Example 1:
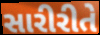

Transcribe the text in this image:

સારીરીતે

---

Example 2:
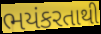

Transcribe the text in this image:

ભયંકરતાથી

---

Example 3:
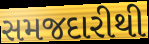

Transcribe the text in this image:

સમજદારીથી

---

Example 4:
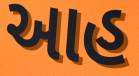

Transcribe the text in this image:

આહ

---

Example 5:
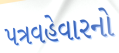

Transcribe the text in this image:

પત્રવહેવારનો